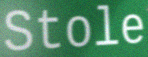
Stole